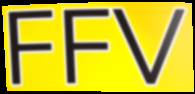
FFV